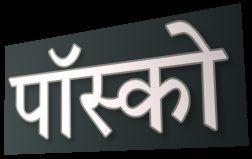
पॉस्‍को